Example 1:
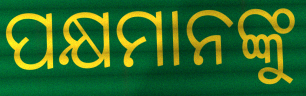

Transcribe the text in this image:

ପକ୍ଷମାନଙ୍କୁ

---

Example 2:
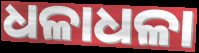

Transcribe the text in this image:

ଧଳାଧଳା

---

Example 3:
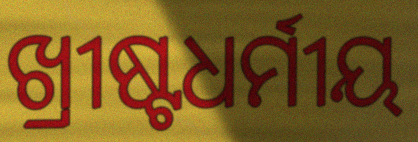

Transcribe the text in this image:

ଖ୍ରୀଷ୍ଟଧର୍ମୀୟ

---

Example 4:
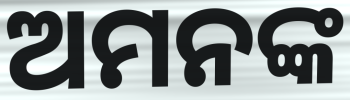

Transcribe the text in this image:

ଅମନଙ୍କ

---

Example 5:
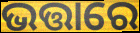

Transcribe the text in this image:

ଭତ୍ତାରେ